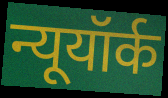
न्यूयॉर्क